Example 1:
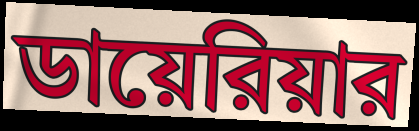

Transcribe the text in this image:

ডায়েরিয়ার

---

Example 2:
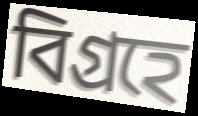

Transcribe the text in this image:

বিগ্রহে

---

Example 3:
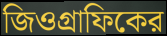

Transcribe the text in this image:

জিওগ্রাফিকের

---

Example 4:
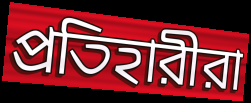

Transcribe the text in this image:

প্রতিহারীরা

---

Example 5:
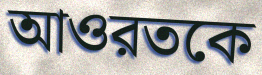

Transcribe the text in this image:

আওরতকে